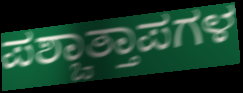
ಪಶ್ಚಾತ್ತಾಪಗಳ